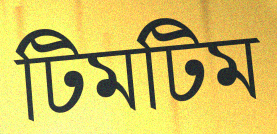
টিমটিম